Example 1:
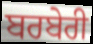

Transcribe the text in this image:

ਬਰਬੇਰੀ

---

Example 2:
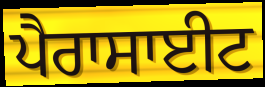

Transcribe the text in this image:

ਪੈਰਾਸਾਈਟ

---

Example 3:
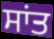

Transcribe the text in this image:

ਸਾਂਤ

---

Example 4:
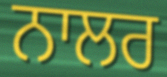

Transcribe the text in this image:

ਨਾਲਰ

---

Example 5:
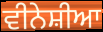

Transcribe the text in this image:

ਵੀਨੇਸ਼ੀਆ